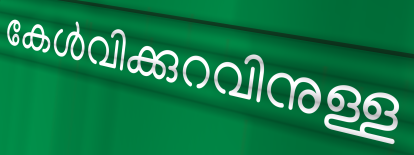
കേൾവിക്കുറവിനുള്ള